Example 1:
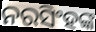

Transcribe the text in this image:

ନରସିଂହଙ୍କ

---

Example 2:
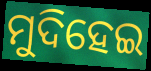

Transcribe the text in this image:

ମୁଦିହେଇ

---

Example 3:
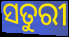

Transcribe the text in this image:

ସତୁରୀ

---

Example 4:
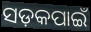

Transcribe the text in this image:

ସଡ଼କପାଇଁ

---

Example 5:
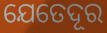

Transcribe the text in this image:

ଯେତେଦୂର